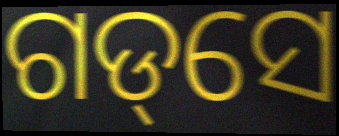
ଗଡ୍‌ସେ